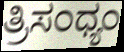
ತ್ರಿಸಂಧ್ಯಂ